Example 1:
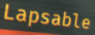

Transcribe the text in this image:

Lapsable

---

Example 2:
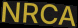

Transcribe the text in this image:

NRCA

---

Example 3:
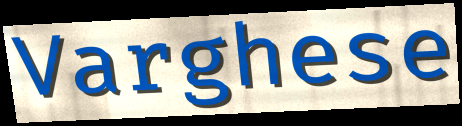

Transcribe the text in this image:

Varghese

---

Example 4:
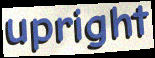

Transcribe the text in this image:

upright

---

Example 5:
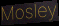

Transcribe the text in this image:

Mosley